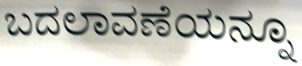
ಬದಲಾವಣೆಯನ್ನೂ